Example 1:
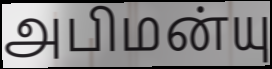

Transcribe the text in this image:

அபிமன்யு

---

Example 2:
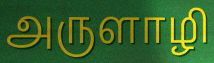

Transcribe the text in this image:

அருளாழி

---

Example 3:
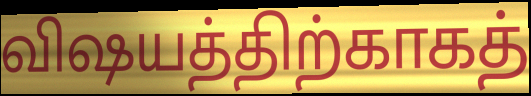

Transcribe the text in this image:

விஷயத்திற்காகத்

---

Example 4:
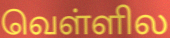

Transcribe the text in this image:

வெள்ளில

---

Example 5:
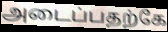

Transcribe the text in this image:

அடைப்பதற்கே